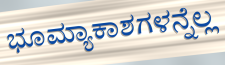
ಭೂಮ್ಯಾಕಾಶಗಳನ್ನೆಲ್ಲ